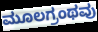
ಮೂಲಗ್ರಂಥವು